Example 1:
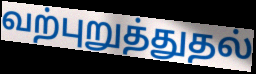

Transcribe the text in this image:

வற்புறுத்துதல்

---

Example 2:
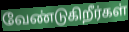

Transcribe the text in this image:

வேண்டுகிறீர்கள்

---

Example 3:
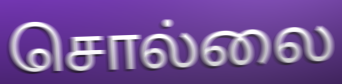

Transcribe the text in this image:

சொல்லை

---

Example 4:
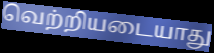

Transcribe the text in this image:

வெற்றியடையாது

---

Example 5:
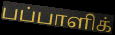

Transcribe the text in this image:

பப்பாளிக்